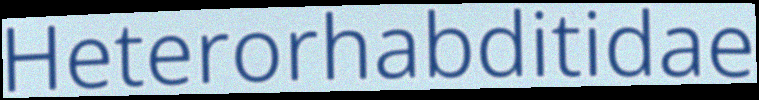
Heterorhabditidae